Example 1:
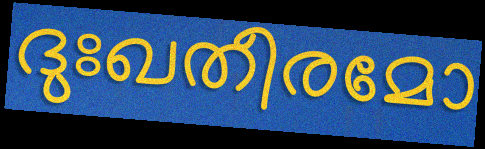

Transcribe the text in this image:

ദുഃഖതീരമോ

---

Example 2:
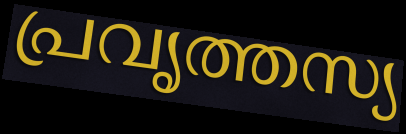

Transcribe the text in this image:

പ്രവൃത്തസ്യ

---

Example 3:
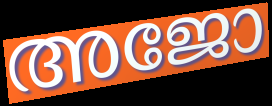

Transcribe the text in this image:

അജോ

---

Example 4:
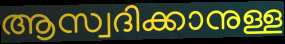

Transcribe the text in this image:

ആസ്വദിക്കാനുള്ള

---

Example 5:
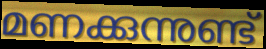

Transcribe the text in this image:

മണക്കുന്നുണ്ട്